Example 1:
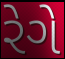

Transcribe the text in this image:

રેગે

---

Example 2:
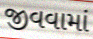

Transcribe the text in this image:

જીવવામાં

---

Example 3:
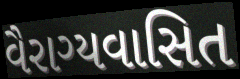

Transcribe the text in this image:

વૈરાગ્યવાસિત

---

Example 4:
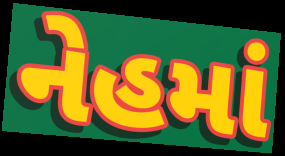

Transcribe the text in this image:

નેહમાં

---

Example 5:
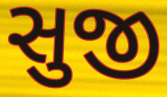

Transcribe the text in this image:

સુજી